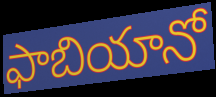
ఫాబియానో